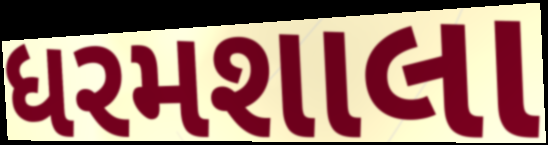
ધરમશાલા